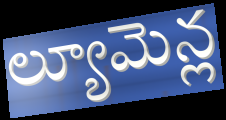
ల్యూమెన్ల